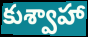
కుశ్వాహా